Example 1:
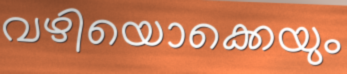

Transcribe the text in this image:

വഴിയൊക്കെയും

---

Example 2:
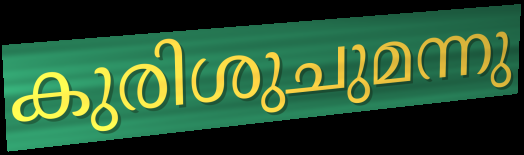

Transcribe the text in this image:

കുരിശുചുമന്നു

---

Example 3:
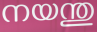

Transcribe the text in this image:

നയന്തു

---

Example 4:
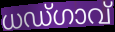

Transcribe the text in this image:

ധഡ്ഗാവ്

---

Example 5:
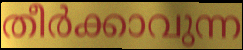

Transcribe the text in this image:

തീർക്കാവുന്ന